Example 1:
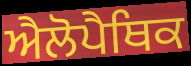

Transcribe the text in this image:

ਐਲੋਪੈਥਿਕ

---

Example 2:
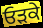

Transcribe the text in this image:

ਓੜਕੇ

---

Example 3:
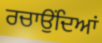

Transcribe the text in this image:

ਰਚਾਉਂਦਿਆਂ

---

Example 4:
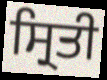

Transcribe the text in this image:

ਸ੍ਰਿਤੀ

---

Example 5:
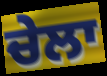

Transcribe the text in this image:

ਚੇਲਾ